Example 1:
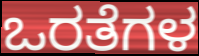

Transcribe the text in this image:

ಒರತೆಗಳ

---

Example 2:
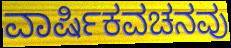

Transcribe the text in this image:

ವಾರ್ಷಿಕವಚನವು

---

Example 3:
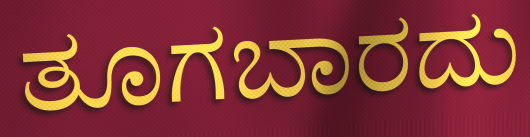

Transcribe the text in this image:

ತೂಗಬಾರದು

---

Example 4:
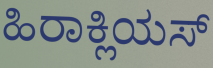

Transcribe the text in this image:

ಹಿರಾಕ್ಲಿಯಸ್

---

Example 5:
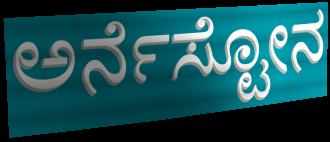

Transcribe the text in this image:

ಅರ್ನೆಸ್ಟೋನ